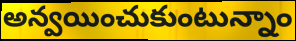
అన్వయించుకుంటున్నాం